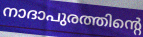
നാദാപുരത്തിന്റെ